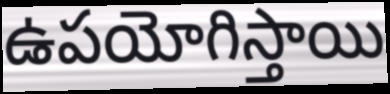
ఉపయోగిస్తాయి